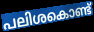
പലിശകൊണ്ട്